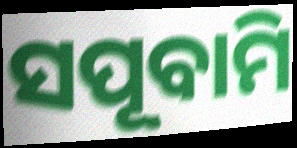
ସପୂବାମି